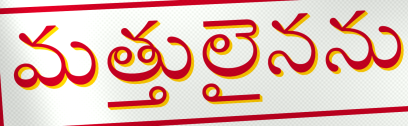
మత్తులైనను